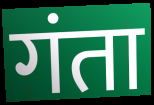
गंता